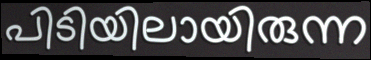
പിടിയിലായിരുന്ന